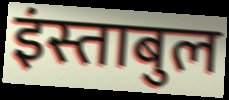
इंस्ताबुल